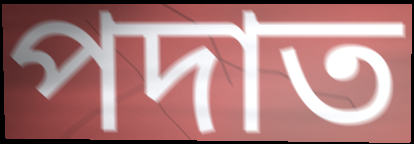
পদাত